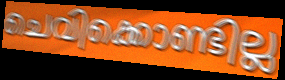
ചെവിക്കൊണ്ടില്ല